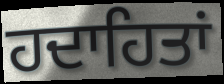
ਹਦਾਹਿਤਾਂ